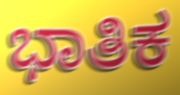
ಭಾತಿಕ